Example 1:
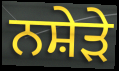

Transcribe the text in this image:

ਨਸ਼ੇੜੇ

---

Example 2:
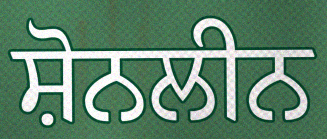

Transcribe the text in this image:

ਸ਼ੋਨਲੀਨ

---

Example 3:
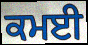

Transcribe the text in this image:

ਕਮਈ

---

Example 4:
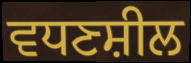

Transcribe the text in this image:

ਵਧਣਸ਼ੀਲ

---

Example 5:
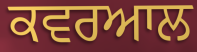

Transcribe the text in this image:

ਕਵਰਆਲ